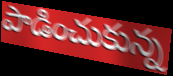
పాడించుకున్న